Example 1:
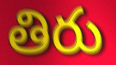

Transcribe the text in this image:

తిరు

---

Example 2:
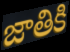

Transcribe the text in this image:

జాతికి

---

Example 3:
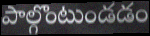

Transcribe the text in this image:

పాల్గొంటుండడం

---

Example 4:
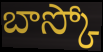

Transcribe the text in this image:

బాస్కో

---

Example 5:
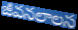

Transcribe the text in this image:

జీవనలాలస